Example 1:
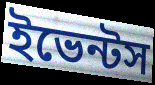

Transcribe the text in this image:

ইভেন্টস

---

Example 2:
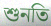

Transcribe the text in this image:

শুনতি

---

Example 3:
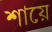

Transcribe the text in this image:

শায়ে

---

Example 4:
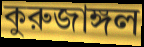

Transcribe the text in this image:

কুরুজাঙ্গল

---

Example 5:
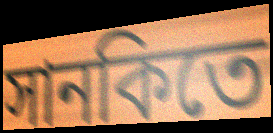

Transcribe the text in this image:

সানকিতে